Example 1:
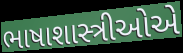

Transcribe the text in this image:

ભાષાશાસ્ત્રીઓએ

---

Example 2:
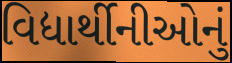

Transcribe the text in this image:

વિદ્યાર્થીનીઓનું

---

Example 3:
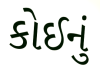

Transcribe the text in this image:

કોઈનું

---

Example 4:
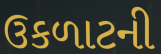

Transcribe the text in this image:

ઉકળાટની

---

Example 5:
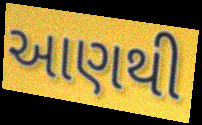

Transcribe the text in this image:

આણથી